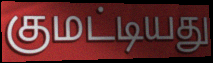
குமட்டியது